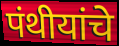
पंथीयांचे